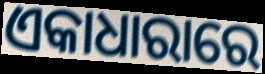
ଏକାଧାରାରେ